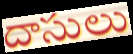
దాసులు